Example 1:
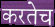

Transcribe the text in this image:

करतेच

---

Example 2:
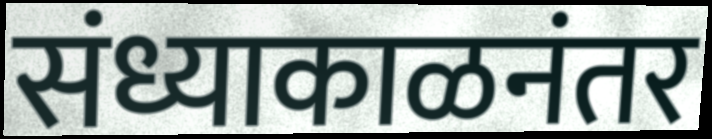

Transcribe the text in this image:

संध्याकाळनंतर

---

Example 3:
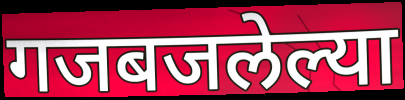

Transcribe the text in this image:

गजबजलेल्या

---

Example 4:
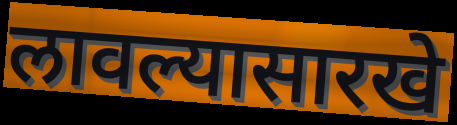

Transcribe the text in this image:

लावल्यासारखे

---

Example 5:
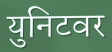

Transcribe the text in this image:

युनिटवर